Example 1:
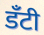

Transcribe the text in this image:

डँटी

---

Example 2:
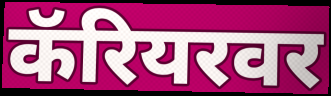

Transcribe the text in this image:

कॅरियरवर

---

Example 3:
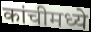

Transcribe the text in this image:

कांचीमध्ये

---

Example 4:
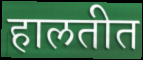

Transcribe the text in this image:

हालतीत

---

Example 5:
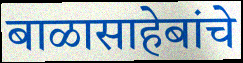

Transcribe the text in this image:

बाळासाहेबांचे